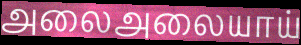
அலைஅலையாய்